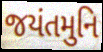
જયંતમુનિ